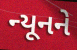
ન્યૂનને